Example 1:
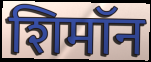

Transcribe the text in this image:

शिमॉन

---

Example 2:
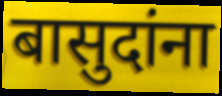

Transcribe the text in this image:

बासुदांना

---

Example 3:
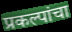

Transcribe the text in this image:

प्रकल्पांचा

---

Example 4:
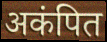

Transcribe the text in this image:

अकंपित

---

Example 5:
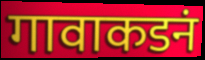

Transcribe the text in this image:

गावाकडनं